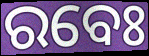
ରବେଃ